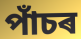
পাঁচৰ